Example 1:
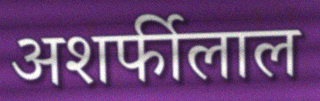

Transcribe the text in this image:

अशर्फीलाल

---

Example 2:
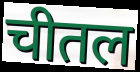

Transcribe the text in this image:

चीतल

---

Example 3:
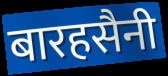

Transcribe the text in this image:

बारहसैनी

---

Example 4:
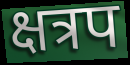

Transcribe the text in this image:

क्षत्रप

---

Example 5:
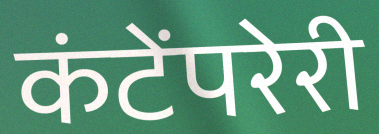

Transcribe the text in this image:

कंटेंपरेरी